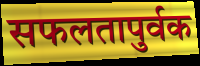
सफलतापुर्वक